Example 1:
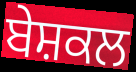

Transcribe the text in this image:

ਬੇਸ਼ਕਲ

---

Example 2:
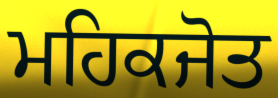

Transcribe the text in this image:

ਮਹਿਕਜੋਤ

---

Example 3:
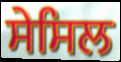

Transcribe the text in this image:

ਸੇਸਿਲ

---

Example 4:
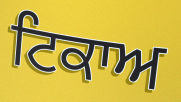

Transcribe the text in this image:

ਟਿਕਾਅ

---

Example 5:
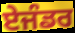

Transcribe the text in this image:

ਏਜੰਡਰ